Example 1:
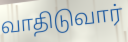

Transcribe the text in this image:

வாதிடுவார்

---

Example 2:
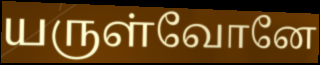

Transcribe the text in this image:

யருள்வோனே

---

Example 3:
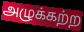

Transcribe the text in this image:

அழுக்கற்ற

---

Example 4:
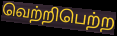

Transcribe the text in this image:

வெற்றிபெற்ற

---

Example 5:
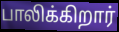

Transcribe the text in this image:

பாலிக்கிறார்